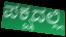
ಪಕ್ಷದಲ್ಲಿ